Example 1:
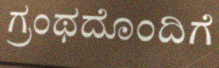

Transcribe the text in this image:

ಗ್ರಂಥದೊಂದಿಗೆ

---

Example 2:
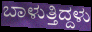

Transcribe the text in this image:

ಬಾಳುತ್ತಿದ್ದಳು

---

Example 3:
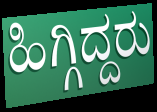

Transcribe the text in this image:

ಹಿಗ್ಗಿದ್ದರು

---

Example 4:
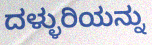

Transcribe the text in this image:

ದಳ್ಳುರಿಯನ್ನು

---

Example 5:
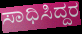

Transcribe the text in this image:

ಸಾಧಿಸಿದ್ದರ